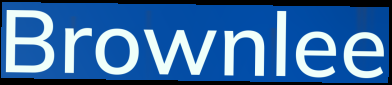
Brownlee